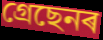
গ্ৰেছেনৰ